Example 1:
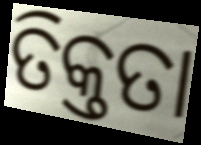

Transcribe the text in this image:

ତିକ୍ତତା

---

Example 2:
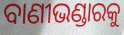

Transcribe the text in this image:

ବାଣୀଭଣ୍ଡାରକୁ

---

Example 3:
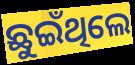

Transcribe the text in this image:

ଛୁଇଁଥିଲେ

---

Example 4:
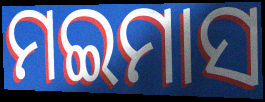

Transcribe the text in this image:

ମଇମାସ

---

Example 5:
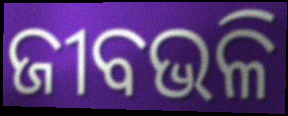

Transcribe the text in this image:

ଜୀବଭଳି